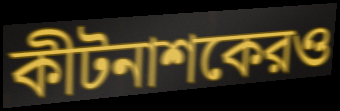
কীটনাশকেরও